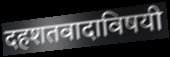
दहशतवादाविषयी